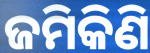
ଜମିକିଣି